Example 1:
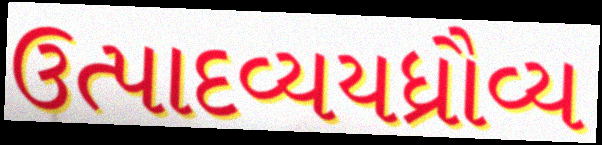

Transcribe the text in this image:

ઉત્પાદવ્યયધ્રૌવ્ય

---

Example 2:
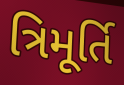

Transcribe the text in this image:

ત્રિમૂર્તિ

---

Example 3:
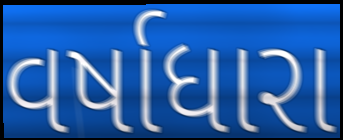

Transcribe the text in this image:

વર્ષાધારા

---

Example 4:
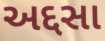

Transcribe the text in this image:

અદ્દસા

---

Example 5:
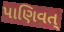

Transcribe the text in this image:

પાણિવત્